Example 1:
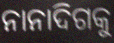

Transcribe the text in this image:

ନାନାଦିଗକୁ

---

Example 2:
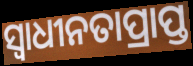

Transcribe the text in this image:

ସ୍ବାଧୀନତାପ୍ରାପ୍ତ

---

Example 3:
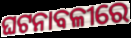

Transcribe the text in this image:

ଘଟନାବଳୀରେ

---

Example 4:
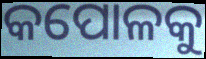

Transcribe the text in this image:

କପୋଳକୁ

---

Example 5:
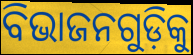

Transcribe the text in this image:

ବିଭାଜନଗୁଡ଼ିକୁ